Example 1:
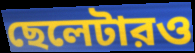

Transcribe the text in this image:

ছেলেটারও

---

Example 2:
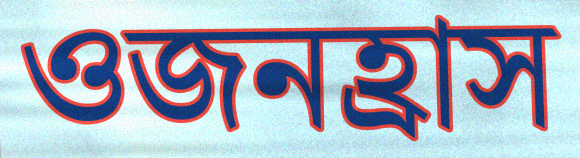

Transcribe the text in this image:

ওজনহ্রাস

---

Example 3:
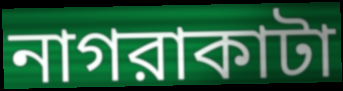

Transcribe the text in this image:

নাগরাকাটা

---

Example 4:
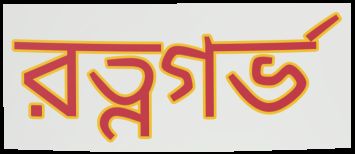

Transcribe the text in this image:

রত্নগর্ভ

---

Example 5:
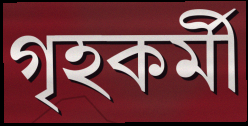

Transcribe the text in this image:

গৃহকর্মী